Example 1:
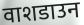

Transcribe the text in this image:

वाशडाउन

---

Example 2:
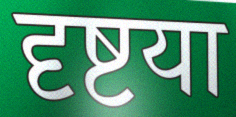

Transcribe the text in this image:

दृष्टया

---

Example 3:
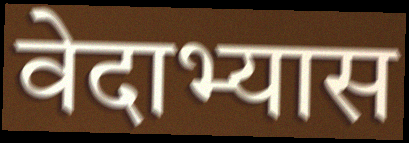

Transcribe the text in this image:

वेदाभ्यास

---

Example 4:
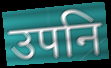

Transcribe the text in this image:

उपनि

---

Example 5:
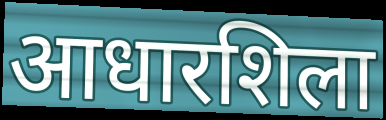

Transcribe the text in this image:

आधारशिला